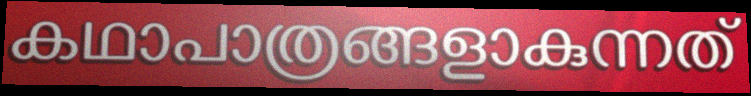
കഥാപാത്രങ്ങളാകുന്നത്